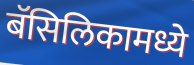
बॅसिलिकामध्ये